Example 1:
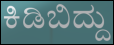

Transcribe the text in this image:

ಕಿಡಿಬಿದ್ದು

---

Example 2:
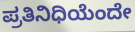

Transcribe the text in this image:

ಪ್ರತಿನಿಧಿಯೆಂದೇ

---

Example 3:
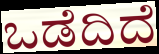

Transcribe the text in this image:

ಒಡೆದಿದೆ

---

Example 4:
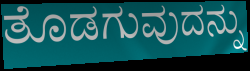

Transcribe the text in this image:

ತೊಡಗುವುದನ್ನು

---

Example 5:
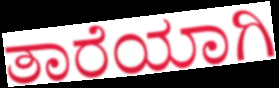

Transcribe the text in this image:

ತಾರೆಯಾಗಿ